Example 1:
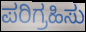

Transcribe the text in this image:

ಪರಿಗ್ರಹಿಸು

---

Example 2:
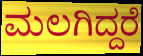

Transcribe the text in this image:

ಮಲಗಿದ್ದರೆ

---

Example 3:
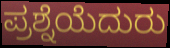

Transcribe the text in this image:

ಪ್ರಶ್ನೆಯೆದುರು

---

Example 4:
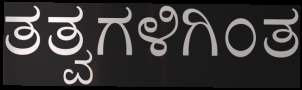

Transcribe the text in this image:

ತತ್ವಗಳಿಗಿಂತ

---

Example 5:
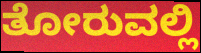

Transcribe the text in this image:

ತೋರುವಲ್ಲಿ